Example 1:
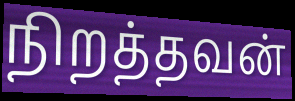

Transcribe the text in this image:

நிறத்தவன்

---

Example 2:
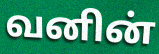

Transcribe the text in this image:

வனின்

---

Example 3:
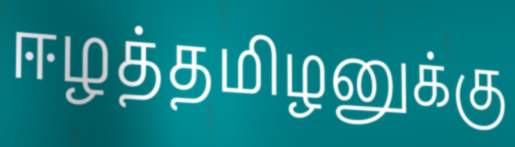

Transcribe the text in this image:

ஈழத்தமிழனுக்கு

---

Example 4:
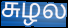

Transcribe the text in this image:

சுழல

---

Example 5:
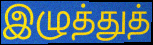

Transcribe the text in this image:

இழுத்துத்